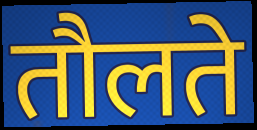
तौलते